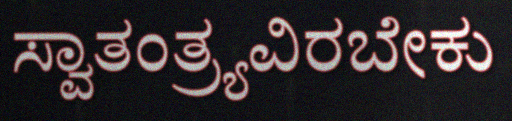
ಸ್ವಾತಂತ್ರ್ಯವಿರಬೇಕು